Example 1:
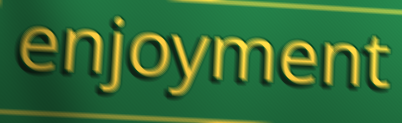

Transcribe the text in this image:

enjoyment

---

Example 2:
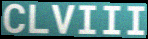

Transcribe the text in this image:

CLVIII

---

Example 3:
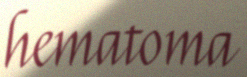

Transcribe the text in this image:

hematoma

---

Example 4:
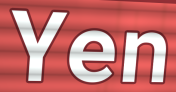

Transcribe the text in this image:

Yen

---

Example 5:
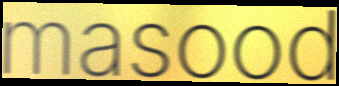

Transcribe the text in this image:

masood